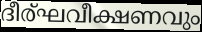
ദീര്ഘവീക്ഷണവും